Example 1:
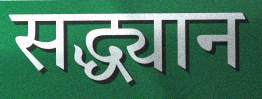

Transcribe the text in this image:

सद्ध्यान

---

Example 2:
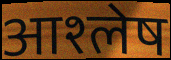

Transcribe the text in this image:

आश्लेष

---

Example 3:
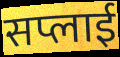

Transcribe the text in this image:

सप्‍लाई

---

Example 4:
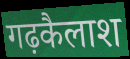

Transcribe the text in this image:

गढ़कैलाश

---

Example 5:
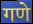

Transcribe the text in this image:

गणे